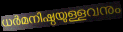
ധർമനിഷ്ഠയുള്ളവനും